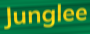
Junglee